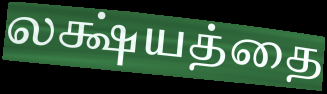
லக்ஷ்யத்தை